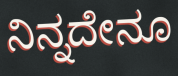
ನಿನ್ನದೇನೂ